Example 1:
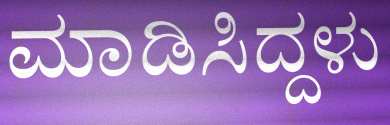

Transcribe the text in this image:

ಮಾಡಿಸಿದ್ದಳು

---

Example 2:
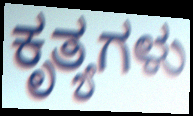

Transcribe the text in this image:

ಕೃತ್ಯಗಳು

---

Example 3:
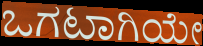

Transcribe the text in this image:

ಒಗಟಾಗಿಯೇ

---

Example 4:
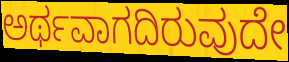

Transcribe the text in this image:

ಅರ್ಥವಾಗದಿರುವುದೇ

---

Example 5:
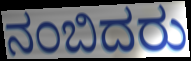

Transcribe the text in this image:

ನಂಬಿದರು